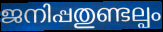
ജനിപ്പതുണ്ടല്പം